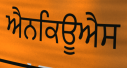
ਐਨਕਿਊਐਸ